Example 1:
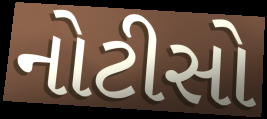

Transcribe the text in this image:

નોટીસો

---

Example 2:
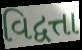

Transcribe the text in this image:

વિદ્વત્તા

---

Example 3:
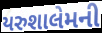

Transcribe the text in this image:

યરુશાલેમની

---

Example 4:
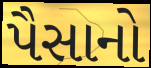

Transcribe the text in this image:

પૈસાનો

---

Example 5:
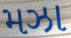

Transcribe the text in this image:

મઝા